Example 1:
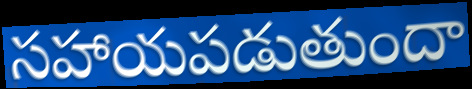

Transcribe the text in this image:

సహాయపడుతుందా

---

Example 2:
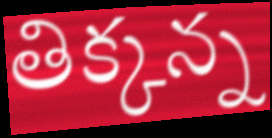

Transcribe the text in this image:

తిక్కన్న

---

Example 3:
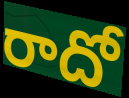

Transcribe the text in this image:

రాదో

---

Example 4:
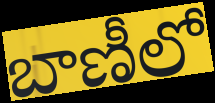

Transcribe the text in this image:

బాణీలో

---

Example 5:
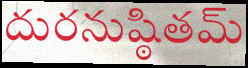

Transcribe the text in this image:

దురనుష్ఠితమ్